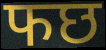
फछ